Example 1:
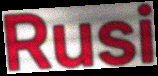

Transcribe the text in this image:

Rusi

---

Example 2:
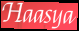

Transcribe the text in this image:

Haasya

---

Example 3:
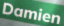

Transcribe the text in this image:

Damien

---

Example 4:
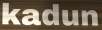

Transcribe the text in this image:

kadun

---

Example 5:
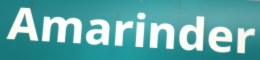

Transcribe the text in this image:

Amarinder